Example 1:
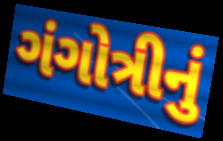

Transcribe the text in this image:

ગંગોત્રીનું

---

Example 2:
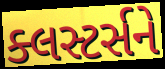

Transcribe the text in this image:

ક્લસ્ટર્સને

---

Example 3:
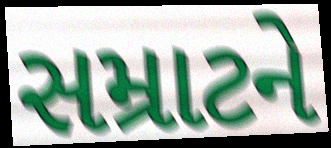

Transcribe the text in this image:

સમ્રાટને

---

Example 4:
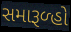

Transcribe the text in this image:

સમારૂળ્હો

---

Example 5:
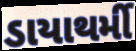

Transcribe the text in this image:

ડાયાથર્મી